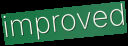
improved